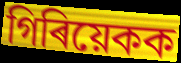
গিৰিয়েকক